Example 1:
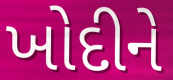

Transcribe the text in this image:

ખોદીને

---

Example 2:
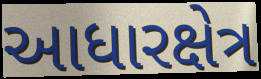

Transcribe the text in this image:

આધારક્ષેત્ર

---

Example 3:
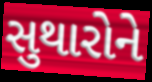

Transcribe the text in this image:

સુથારોને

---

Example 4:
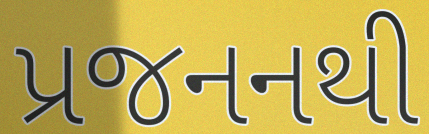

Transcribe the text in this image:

પ્રજનનથી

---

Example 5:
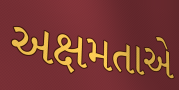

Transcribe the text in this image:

અક્ષમતાએ